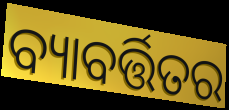
ବ୍ୟାବର୍ତ୍ତିତର